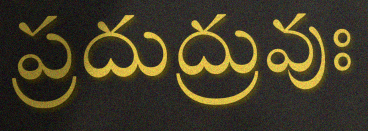
ప్రదుద్రువుః